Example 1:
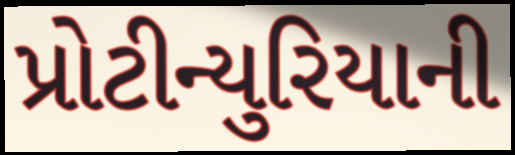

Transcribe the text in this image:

પ્રોટીન્યુરિયાની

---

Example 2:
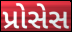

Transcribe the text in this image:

પ્રોસેસ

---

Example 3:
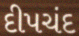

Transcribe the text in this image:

દીપચંદ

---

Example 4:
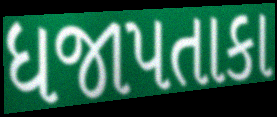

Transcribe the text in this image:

ધજાપતાકા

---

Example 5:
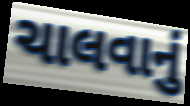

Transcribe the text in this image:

ચાલવાનું